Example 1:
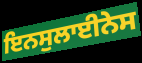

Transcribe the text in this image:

ਇਨਸੁਲਾਈਨੇਸ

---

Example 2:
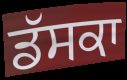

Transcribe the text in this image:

ਡੱਸਕਾ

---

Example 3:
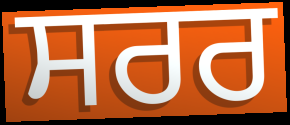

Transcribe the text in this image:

ਸਰਰ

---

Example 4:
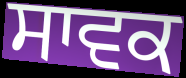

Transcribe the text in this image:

ਸਾਵਕ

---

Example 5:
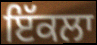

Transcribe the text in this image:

ਇੱਕਲਾ